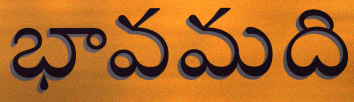
భావమది